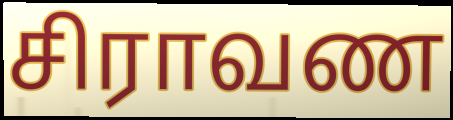
சிராவண